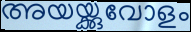
അയയ്ക്കുവോളം